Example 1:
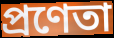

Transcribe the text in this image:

প্রণেতা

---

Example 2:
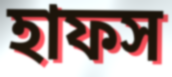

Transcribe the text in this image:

হাফস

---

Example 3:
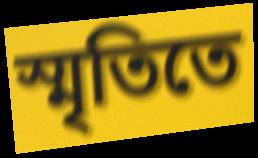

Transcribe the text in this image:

স্মৃতিতে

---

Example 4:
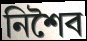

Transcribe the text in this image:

নিশৈব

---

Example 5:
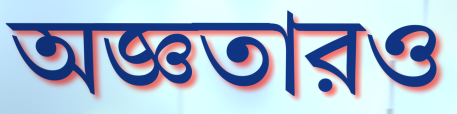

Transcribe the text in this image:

অজ্ঞতারও